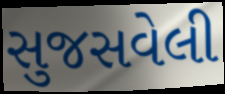
સુજસવેલી